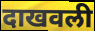
दाखवली